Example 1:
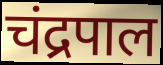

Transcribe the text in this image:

चंद्रपाल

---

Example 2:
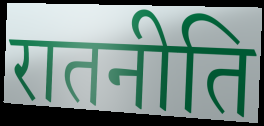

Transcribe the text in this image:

रातनीति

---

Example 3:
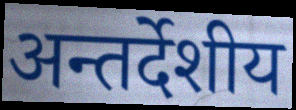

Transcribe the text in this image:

अन्तर्देशीय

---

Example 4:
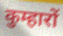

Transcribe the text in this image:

कुम्हारों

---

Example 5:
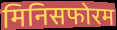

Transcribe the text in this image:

मिनिसफोरम